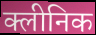
क्‍लीनिक